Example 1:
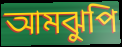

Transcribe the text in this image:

আমঝুপি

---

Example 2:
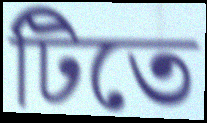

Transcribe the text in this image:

টিতে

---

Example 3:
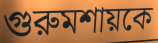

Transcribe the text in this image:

গুরুমশায়কে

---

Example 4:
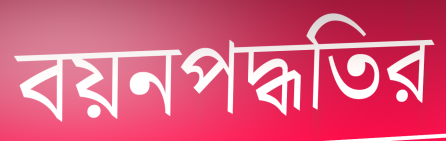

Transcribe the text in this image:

বয়নপদ্ধতির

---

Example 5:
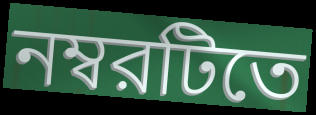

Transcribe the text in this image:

নম্বরটিতে